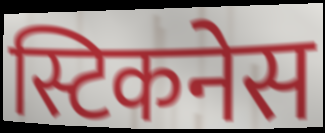
स्टिकनेस